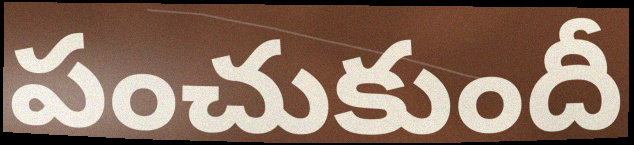
పంచుకుందీ